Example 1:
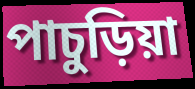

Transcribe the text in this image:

পাচুড়িয়া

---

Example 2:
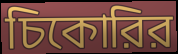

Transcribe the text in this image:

চিকোরির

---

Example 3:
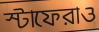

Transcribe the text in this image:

স্টাফেরাও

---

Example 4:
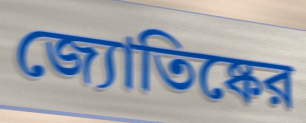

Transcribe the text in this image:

জ্যোতিষ্কের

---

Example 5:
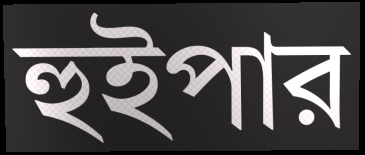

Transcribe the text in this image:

হুইপার